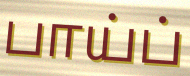
பாய்ப்